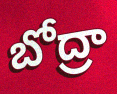
బోద్రా